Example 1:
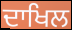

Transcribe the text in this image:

ਦਾਖਿਲ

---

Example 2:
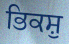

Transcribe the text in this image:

ਭਿਕਸ਼ੁ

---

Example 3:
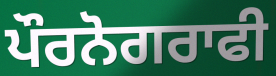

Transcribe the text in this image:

ਪੌਰਨੋਗਰਾਫੀ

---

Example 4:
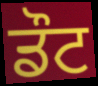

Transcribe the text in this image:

ਡੌਟ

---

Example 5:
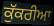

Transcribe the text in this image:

ਕੁੱਕਰੀਆ